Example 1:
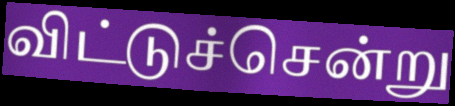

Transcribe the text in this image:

விட்டுச்சென்று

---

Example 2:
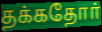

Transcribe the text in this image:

தக்கதோர்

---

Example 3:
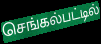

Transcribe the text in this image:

செங்கல்பட்டில்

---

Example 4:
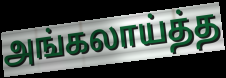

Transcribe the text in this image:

அங்கலாய்த்த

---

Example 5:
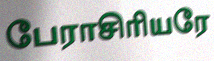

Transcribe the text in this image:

பேராசிரியரே